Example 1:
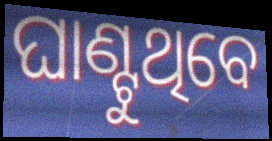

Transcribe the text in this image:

ଘାଣ୍ଟୁଥିବେ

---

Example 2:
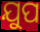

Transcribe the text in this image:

ଯୁପ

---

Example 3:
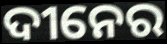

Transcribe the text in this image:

ଦୀନେର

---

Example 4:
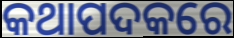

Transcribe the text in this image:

କଥାପଦକରେ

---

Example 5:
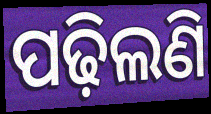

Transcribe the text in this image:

ପଢ଼ିଲଣି